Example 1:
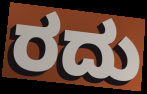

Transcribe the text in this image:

ರದು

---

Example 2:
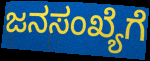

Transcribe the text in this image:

ಜನಸಂಖ್ಯೆಗೆ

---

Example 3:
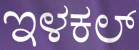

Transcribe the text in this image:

ಇಳಕಲ್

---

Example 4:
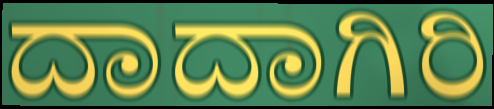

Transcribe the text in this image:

ದಾದಾಗಿರಿ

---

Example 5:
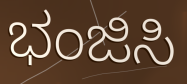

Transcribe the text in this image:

ಭಂಜಿಸಿ